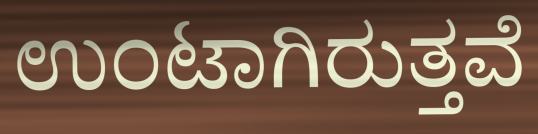
ಉಂಟಾಗಿರುತ್ತವೆ